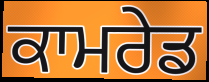
ਕਾਮਰੇਡ